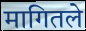
मागितले